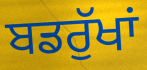
ਬਡਰੁੱਖਾਂ